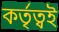
কর্তৃত্বই